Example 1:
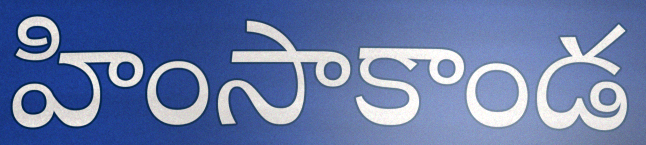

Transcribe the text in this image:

హింసాకాండ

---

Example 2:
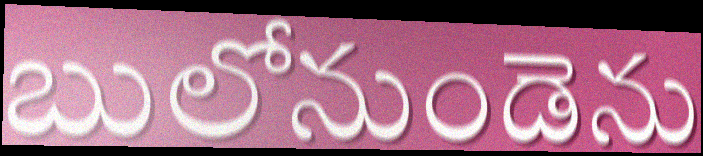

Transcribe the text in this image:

బులోనుండెను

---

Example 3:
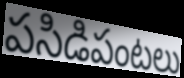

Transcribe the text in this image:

పసిడిపంటలు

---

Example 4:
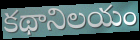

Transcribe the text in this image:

కథానిలయం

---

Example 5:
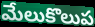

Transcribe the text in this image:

మేలుకొలుప